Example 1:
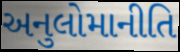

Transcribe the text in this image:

અનુલોમાનીતિ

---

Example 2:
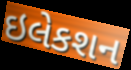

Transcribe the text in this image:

ઇલેકશન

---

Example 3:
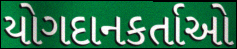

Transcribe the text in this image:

યોગદાનકર્તાઓ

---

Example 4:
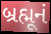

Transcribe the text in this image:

બ્રહ્મૂનં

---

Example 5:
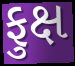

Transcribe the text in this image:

ફુક્ષ